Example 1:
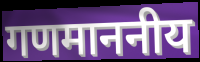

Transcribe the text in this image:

गणमाननीय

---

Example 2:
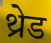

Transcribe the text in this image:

थ्रेड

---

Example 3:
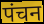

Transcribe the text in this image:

पंचन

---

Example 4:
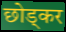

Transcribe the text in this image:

छोड्कर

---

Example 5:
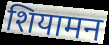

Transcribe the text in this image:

शियामन